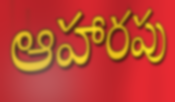
ఆహారపు